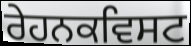
ਰੇਹਨਕਵਿਸਟ